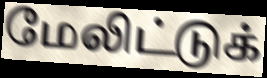
மேலிட்டுக்